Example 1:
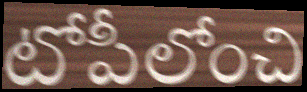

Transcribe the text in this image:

టోపీలోంచి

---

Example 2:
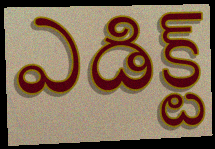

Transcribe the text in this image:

ఎడిక్ట్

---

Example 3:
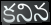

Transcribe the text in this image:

కనిన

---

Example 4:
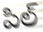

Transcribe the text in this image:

పిల్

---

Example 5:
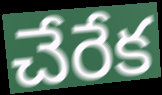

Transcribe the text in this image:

చేరేక